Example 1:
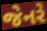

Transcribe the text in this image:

જેનરે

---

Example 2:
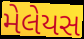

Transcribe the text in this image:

મેલેયસ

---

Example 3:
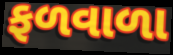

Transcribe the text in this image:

ફળવાળા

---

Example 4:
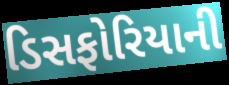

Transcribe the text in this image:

ડિસફોરિયાની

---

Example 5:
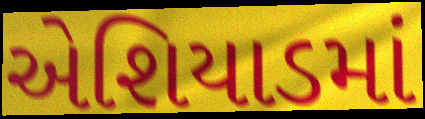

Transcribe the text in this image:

એશિયાડમાં